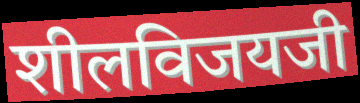
शीलविजयजी